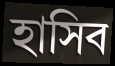
হাসিব